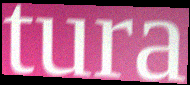
tura